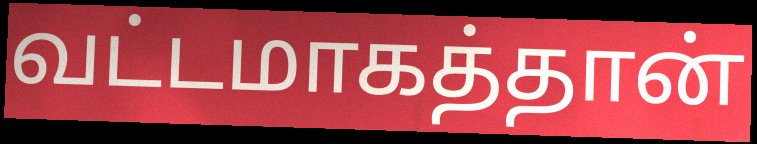
வட்டமாகத்தான்